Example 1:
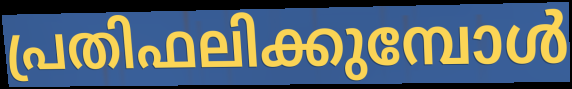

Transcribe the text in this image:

പ്രതിഫലിക്കുമ്പോൾ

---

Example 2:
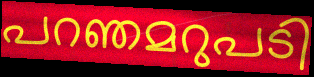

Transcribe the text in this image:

പറഞമറുപടി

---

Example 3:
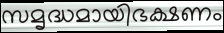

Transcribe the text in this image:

സമൃദ്ധമായിഭക്ഷണം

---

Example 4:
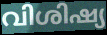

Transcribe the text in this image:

വിശിഷ്യ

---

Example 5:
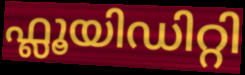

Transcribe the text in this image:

ഫ്ലൂയിഡിറ്റി